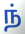
ந்